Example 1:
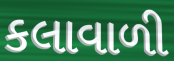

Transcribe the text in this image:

કલાવાળી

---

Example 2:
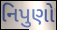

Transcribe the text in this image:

નિપુણો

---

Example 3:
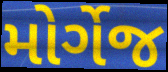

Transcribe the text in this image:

મોર્ગેજ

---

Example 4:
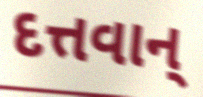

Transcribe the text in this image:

દત્તવાન્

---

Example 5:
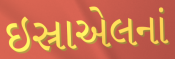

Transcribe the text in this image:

ઇસ્રાએલનાં